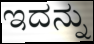
ಇದನ್ನು